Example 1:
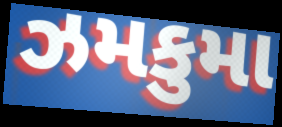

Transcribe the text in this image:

ઝમકુમા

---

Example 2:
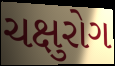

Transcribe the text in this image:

ચક્ષુરોગ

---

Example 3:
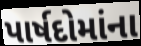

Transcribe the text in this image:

પાર્ષદોમાંના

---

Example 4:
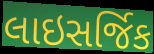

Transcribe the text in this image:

લાઇસર્જિક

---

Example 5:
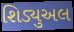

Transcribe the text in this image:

શિડ્યુઅલ